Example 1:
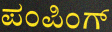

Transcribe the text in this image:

ಪಂಪಿಂಗ್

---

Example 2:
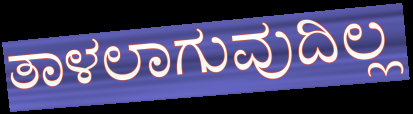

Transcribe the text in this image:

ತಾಳಲಾಗುವುದಿಲ್ಲ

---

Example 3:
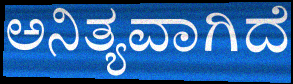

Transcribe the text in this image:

ಅನಿತ್ಯವಾಗಿದೆ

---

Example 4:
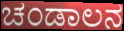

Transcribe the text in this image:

ಚಂಡಾಲನ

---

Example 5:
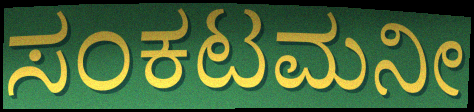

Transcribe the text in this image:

ಸಂಕಟಮನೀ